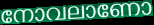
നോവലാണോ